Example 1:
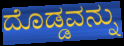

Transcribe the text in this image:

ದೊಡ್ಡವನ್ನು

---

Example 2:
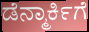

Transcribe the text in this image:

ಡೆನ್ಮಾರ್ಕಿಗೆ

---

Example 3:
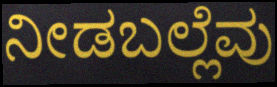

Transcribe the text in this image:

ನೀಡಬಲ್ಲೆವು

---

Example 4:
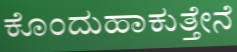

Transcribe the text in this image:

ಕೊಂದುಹಾಕುತ್ತೇನೆ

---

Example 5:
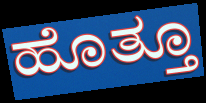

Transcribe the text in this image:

ಹೊತ್ತೂ